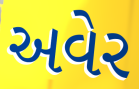
અવેર